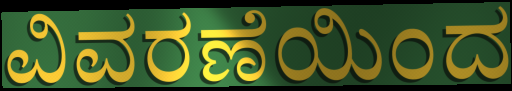
ವಿವರಣೆಯಿಂದ